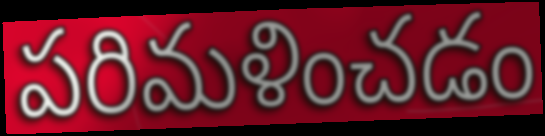
పరిమళించడం